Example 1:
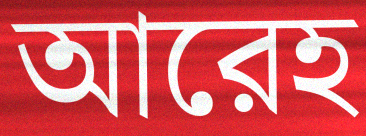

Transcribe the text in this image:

আরেহ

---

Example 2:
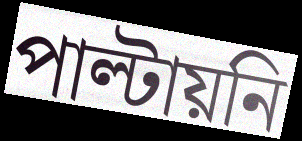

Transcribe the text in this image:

পাল্টায়নি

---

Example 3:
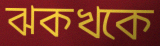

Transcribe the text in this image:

ঝকখকে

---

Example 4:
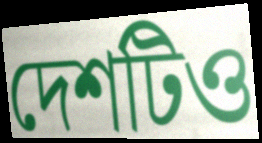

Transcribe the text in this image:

দেশটিও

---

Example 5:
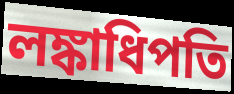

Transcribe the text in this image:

লঙ্কাধিপতি